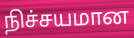
நிச்சயமான